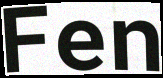
Fen